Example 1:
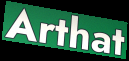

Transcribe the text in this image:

Arthat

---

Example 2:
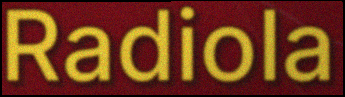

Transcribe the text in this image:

Radiola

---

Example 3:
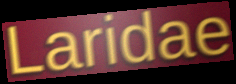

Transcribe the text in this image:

Laridae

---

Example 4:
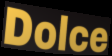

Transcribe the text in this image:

Dolce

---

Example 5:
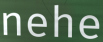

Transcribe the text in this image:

nehe